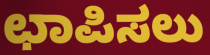
ಛಾಪಿಸಲು